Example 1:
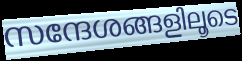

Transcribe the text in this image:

സന്ദേശങ്ങളിലൂടെ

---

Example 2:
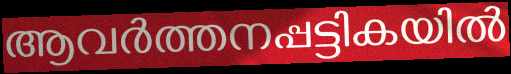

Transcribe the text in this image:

ആവർത്തനപ്പട്ടികയിൽ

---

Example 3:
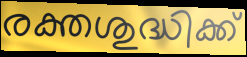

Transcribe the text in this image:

രക്തശുദ്ധിക്ക്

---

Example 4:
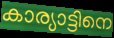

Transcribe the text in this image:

കാര്യാട്ടിനെ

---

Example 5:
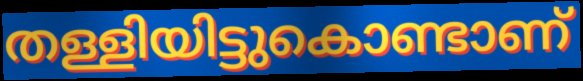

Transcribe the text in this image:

തള്ളിയിട്ടുകൊണ്ടാണ്